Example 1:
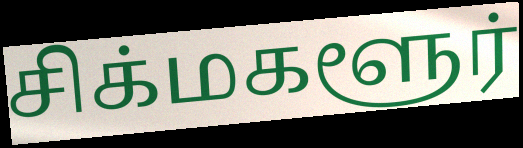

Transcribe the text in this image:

சிக்மகளூர்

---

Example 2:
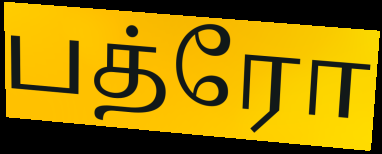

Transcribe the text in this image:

பத்ரோ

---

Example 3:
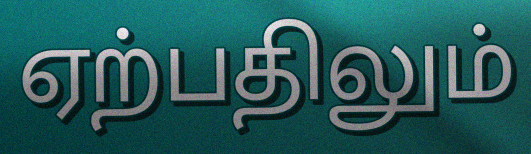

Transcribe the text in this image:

ஏற்பதிலும்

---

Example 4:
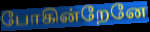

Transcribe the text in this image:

போகின்றேனே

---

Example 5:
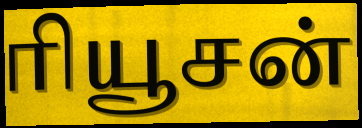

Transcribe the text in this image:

ரியூசன்